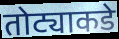
तोट्याकडे